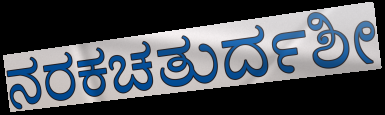
ನರಕಚತುರ್ದಶೀ